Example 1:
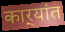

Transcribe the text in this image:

कार्यांत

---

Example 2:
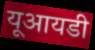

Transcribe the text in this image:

यूआयडी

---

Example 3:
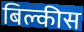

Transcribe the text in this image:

बिल्कीस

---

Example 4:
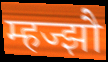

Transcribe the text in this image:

म्हज्झौ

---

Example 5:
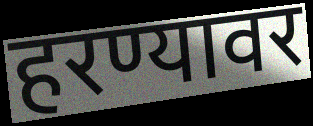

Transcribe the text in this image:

हरण्यावर